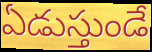
ఏడుస్తుండే